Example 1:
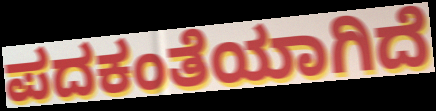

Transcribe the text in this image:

ಪದಕಂತೆಯಾಗಿದೆ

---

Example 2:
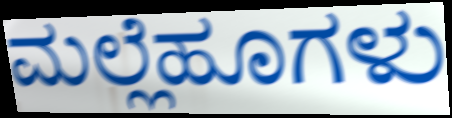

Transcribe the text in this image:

ಮಲ್ಲೆಹೂಗಳು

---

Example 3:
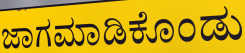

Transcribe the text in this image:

ಜಾಗಮಾಡಿಕೊಂಡು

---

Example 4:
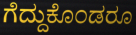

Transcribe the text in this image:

ಗೆದ್ದುಕೊಂಡರೂ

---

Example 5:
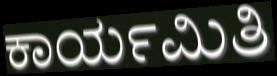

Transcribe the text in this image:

ಕಾರ್ಯಮಿತಿ